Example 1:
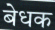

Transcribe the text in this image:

बेधक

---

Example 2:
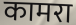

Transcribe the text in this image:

कामरा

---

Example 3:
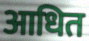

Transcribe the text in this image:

आधित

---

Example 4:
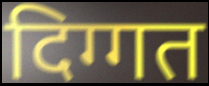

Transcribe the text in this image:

दिग्गत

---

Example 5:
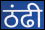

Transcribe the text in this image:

ठंढी